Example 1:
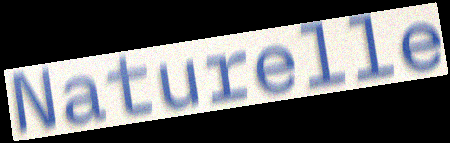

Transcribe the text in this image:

Naturelle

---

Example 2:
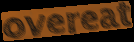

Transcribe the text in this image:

overeat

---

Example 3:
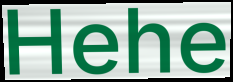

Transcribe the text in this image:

Hehe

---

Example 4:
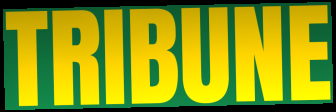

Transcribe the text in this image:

TRIBUNE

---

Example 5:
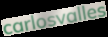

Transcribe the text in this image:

carlosvalles